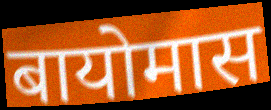
बायोमास